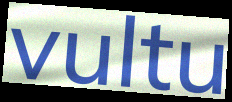
vultu